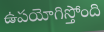
ఉపయోగిస్తోంది